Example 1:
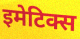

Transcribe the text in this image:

इमेटिक्स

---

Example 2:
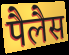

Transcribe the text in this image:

पैलैस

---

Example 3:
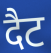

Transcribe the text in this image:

दैट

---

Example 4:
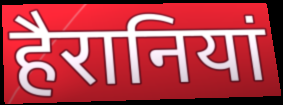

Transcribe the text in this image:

हैरानियां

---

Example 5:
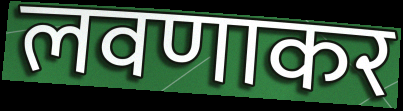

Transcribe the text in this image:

लवणाकर